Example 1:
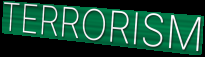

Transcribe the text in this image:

TERRORISM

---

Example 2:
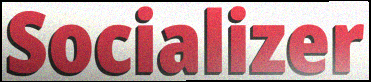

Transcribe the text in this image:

Socializer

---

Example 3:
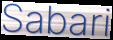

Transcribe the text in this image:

Sabari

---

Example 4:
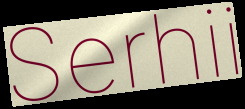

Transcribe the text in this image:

Serhii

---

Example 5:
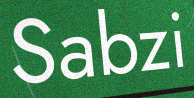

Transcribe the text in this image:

Sabzi